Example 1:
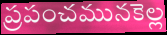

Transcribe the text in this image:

ప్రపంచమునకెల్ల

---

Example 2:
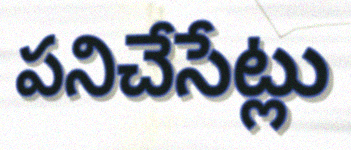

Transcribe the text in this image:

పనిచేసేట్లు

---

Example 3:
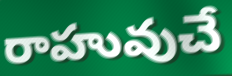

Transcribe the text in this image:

రాహువుచే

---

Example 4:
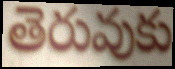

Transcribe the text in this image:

తెరువుకు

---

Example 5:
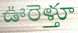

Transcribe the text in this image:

ఊరెళ్తూ